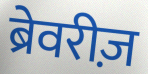
ब्रेवरीज़